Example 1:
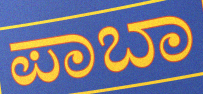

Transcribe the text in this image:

ಪಾಬಾ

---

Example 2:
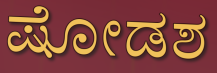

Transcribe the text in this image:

ಷೋಡಶ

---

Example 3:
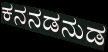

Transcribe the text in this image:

ಕನನಡನುಡ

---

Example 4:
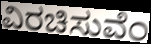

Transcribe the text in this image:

ವಿರಚಿಸುವೆಂ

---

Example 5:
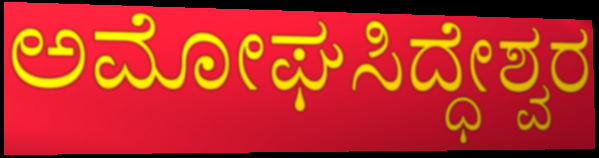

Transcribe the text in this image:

ಅಮೋಘಸಿದ್ಧೇಶ್ವರ